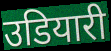
उडियारी